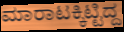
ಮಾರಾಟಕ್ಕಿಟ್ಟಿದ್ದ